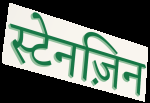
स्टेनज़िन